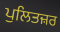
ਪੁਲਿਤਜ਼ਰ